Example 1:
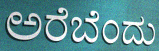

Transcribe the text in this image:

ಅರೆಬೆಂದು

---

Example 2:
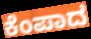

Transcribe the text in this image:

ಕೆಂಪಾದ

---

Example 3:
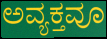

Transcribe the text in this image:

ಅವ್ಯಕ್ತವೂ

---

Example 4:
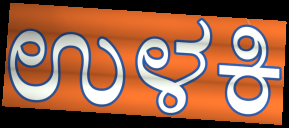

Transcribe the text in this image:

ಉಳಕಿ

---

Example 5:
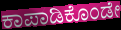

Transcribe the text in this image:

ಕಾಪಾಡಿಕೊಂಡೇ